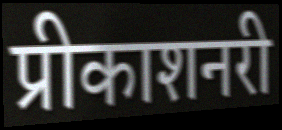
प्रीकाशनरी